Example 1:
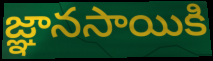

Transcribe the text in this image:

జ్ఞానసాయికి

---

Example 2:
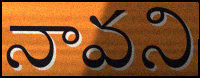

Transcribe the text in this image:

నావని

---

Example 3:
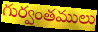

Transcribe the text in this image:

గుర్వంతములు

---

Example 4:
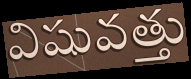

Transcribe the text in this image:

విషువత్తు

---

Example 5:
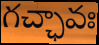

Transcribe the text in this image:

గచ్ఛావః